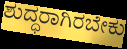
ಶುದ್ಧರಾಗಿರಬೇಕು